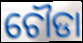
ଚୌଡା